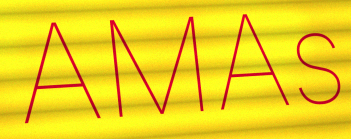
AMAs